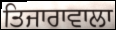
ਤਿਜਾਰਾਵਾਲਾ